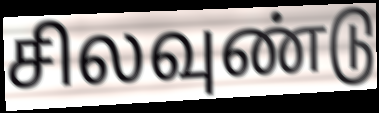
சிலவுண்டு